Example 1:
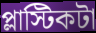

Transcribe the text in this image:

প্লাস্টিকটা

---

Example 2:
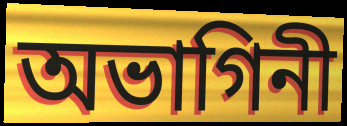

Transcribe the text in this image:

অভাগিনী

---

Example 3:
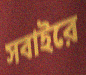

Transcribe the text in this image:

সবাইরে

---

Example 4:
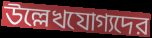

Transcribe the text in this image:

উল্লেখযোগ্যদের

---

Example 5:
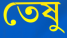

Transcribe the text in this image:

তেষু